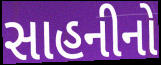
સાહનીનો